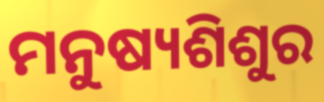
ମନୁଷ୍ୟଶିଶୁର